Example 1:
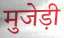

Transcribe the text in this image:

मुजेड़ी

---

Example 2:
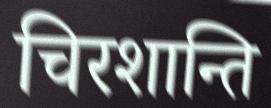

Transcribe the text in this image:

चिरशान्ति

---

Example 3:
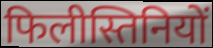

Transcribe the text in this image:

फिलीस्तिनियों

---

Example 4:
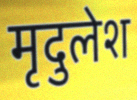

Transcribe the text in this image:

मृदुलेश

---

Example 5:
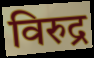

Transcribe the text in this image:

विरुद्र